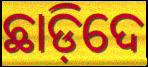
ଛାଡ଼ିଦେ